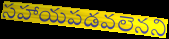
సహాయపడవలెనని